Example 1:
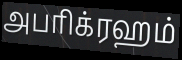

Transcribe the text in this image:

அபரிக்ரஹம்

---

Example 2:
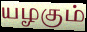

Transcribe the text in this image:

யழகும்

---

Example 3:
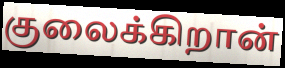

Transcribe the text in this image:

குலைக்கிறான்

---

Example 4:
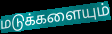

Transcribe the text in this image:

மடுக்களையும்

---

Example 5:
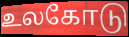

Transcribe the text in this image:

உலகோடு